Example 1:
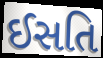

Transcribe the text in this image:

ઈસતિ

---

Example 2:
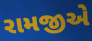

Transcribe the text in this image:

રામજીએ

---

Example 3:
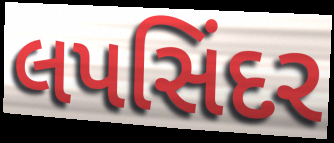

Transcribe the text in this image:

લપસિંદર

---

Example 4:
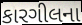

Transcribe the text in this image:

કારગીલના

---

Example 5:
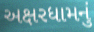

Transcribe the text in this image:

અક્ષરધામનું